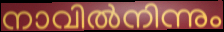
നാവിൽനിന്നും